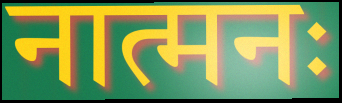
नात्मनः